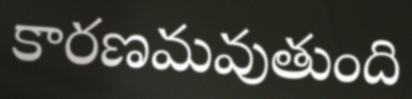
కారణమవుతుంది